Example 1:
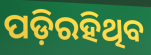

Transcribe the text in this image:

ପଡ଼ିରହିଥିବ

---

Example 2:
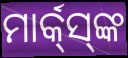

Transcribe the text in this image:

ମାର୍କ୍‌ସ୍‌ଙ୍କ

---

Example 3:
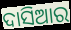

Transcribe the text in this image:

ଦାସିଆର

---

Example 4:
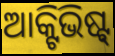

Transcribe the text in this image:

ଆକ୍ଟିଭିଷ୍ଟ୍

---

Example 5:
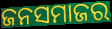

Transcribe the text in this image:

ଜନସମାଜର